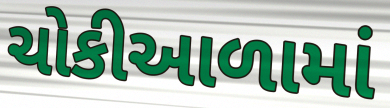
ચોકીઆળામાં